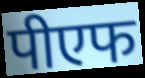
पीएफ